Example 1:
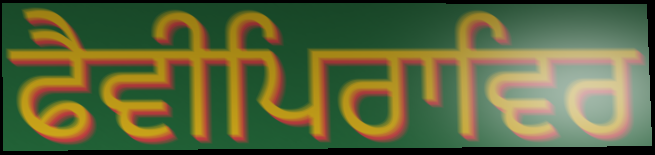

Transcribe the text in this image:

ਫੈਵੀਪਿਰਾਵਿਰ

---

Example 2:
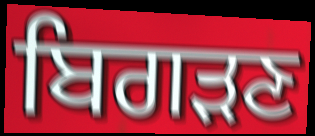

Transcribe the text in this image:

ਬਿਗੜਣ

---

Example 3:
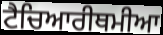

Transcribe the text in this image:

ਟੈਚਿਆਰੀਥਮੀਆ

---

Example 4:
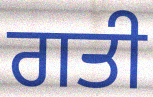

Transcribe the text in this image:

ਗਤੀ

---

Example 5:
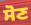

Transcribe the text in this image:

ਸੋਣ